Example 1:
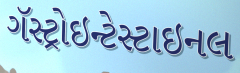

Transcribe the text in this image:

ગૅસ્ટ્રોઇન્ટેસ્ટાઇનલ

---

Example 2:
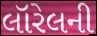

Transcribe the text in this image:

લૉરેલની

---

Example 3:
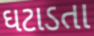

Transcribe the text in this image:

ઘટાડતા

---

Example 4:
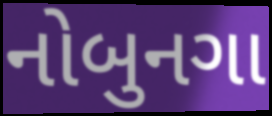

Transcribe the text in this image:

નોબુનગા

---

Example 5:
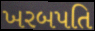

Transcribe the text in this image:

ખરબપતિ